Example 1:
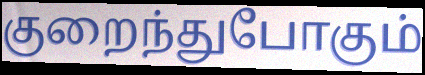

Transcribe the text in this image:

குறைந்துபோகும்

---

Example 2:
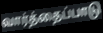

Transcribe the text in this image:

வார்த்தைப்பாடு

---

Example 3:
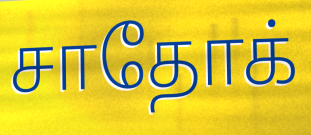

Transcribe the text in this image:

சாதோக்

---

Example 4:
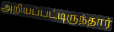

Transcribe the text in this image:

அறியப்பட்டிருந்தார்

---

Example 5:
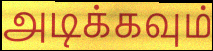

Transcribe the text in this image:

அடிக்கவும்